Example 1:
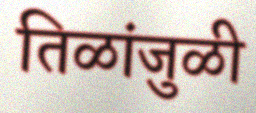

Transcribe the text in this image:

तिळांजुळी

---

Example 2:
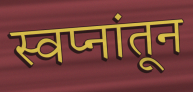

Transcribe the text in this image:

स्वप्नांतून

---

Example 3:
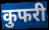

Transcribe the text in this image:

कुफरी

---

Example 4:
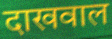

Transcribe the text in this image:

दाखवाल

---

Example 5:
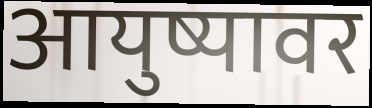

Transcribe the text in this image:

आयुष्यावर